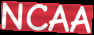
NCAA